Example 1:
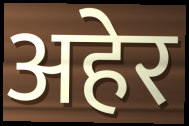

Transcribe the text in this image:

अहेर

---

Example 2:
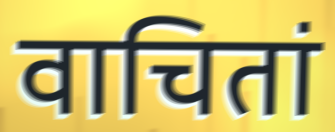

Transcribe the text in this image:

वाचितां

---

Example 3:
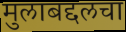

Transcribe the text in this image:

मुलाबद्दलचा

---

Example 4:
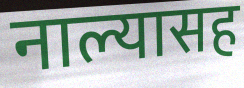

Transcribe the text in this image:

नाल्यासह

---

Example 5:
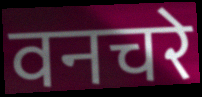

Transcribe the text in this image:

वनचरे